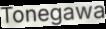
Tonegawa